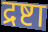
द्रष्टा